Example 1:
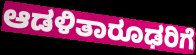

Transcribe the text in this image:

ಆಡಳಿತಾರೂಢರಿಗೆ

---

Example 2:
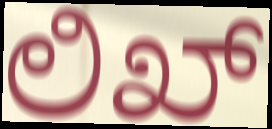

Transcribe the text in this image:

ಲಿಖ್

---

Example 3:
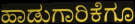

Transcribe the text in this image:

ಹಾಡುಗಾರಿಕೆಗೂ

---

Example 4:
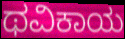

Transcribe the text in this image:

ಥವಿಕಾಯ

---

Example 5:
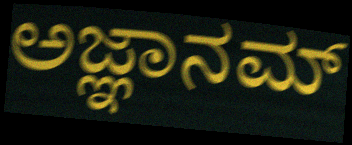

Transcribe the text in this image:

ಅಜ್ಞಾನಮ್